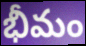
భీమం